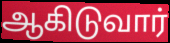
ஆகிடுவார்